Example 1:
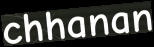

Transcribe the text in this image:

chhanan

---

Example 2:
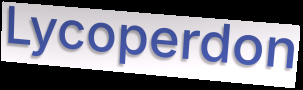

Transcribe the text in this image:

Lycoperdon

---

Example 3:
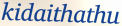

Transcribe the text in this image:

kidaithathu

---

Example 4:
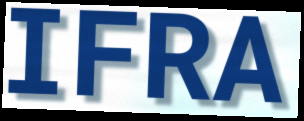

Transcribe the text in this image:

IFRA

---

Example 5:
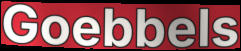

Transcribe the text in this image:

Goebbels